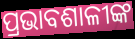
ପ୍ରଭାବଶାଳୀଙ୍କ